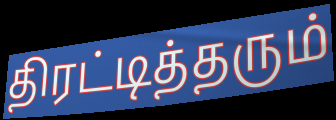
திரட்டித்தரும்